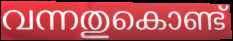
വന്നതുകൊണ്ട്